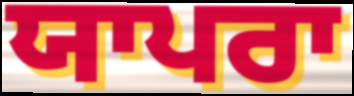
ਯਾਪਰਾ